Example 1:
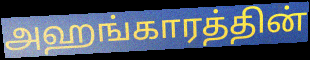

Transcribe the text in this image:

அஹங்காரத்தின்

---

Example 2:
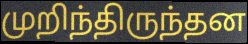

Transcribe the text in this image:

முறிந்திருந்தன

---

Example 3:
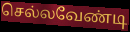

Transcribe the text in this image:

செல்லவேண்டி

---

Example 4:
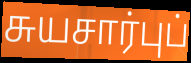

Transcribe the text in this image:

சுயசார்புப்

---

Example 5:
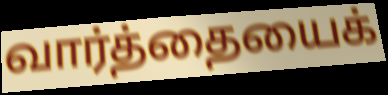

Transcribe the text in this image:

வார்த்தையைக்